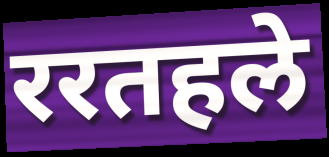
ररतहले